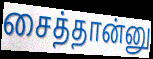
சைத்தான்னு